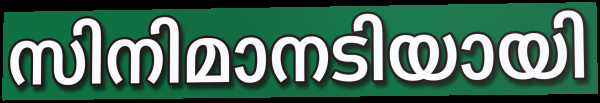
സിനിമാനടിയായി